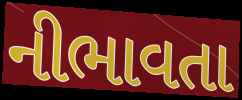
નીભાવતા